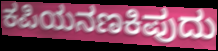
ಕಪಿಯನಣಕಿಪುದು